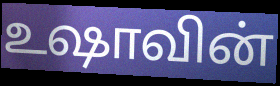
உஷாவின்